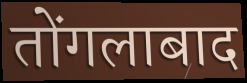
तोंगलाबाद